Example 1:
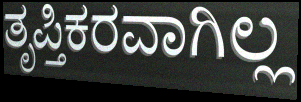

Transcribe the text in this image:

ತೃಪ್ತಿಕರವಾಗಿಲ್ಲ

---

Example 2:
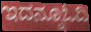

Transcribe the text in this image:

ಇದನ್ನೂಓದಿ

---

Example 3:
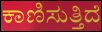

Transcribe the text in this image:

ಕಾಣಿಸುತ್ತಿದೆ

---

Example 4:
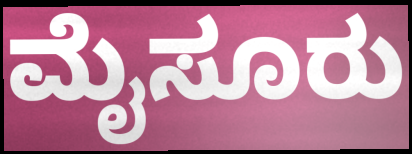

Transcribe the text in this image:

ಮೈಸೂರು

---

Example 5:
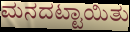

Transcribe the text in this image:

ಮನದಟ್ಟಾಯಿತು